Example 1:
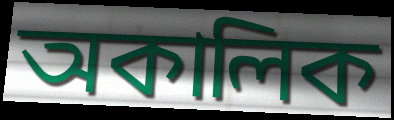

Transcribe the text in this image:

অকালিক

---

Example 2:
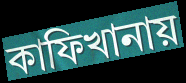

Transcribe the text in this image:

কাফিখানায়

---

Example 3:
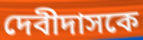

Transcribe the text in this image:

দেবীদাসকে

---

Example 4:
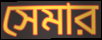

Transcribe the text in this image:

সেমার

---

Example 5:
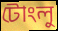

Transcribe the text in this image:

টোংলু